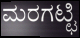
ಮರಗಟ್ಟಿ